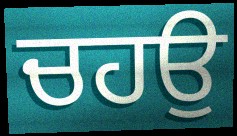
ਚਹਉ